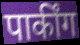
पार्कींग